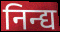
निन्द्य